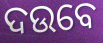
ଦଉବେ